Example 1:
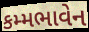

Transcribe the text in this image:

કમ્મભાવેન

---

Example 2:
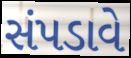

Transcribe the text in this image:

સંપડાવે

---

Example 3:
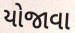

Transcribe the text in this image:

યોજાવા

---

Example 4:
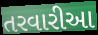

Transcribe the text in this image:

તરવારીઆ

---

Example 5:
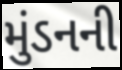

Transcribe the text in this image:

મુંડનની